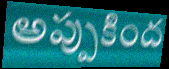
అప్పుకింద